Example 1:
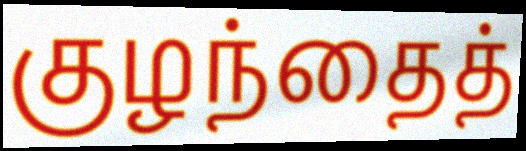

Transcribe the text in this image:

குழந்தைத்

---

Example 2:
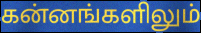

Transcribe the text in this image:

கன்னங்களிலும்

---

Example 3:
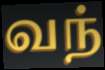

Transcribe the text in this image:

வந்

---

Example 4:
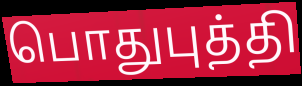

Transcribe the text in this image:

பொதுபுத்தி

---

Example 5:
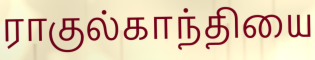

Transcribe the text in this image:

ராகுல்காந்தியை